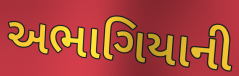
અભાગિયાની